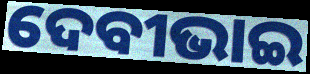
ଦେବୀଭାଇ